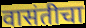
वासंतीचा